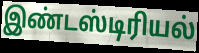
இண்டஸ்டிரியல்